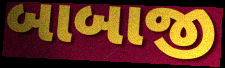
બાબાજી